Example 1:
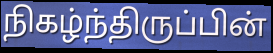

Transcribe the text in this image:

நிகழ்ந்திருப்பின்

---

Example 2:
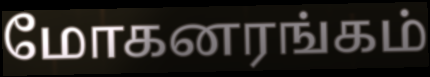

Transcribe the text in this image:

மோகனரங்கம்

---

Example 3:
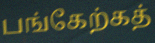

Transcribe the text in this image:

பங்கேற்கத்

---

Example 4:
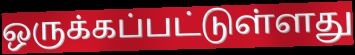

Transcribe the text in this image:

ஒருக்கப்பட்டுள்ளது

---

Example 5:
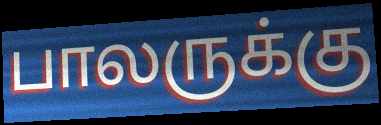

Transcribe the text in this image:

பாலருக்கு